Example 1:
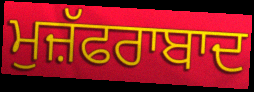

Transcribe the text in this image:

ਮੁਜ਼ੱਫਰਾਬਾਦ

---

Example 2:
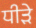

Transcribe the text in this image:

ਧੀੜੇ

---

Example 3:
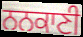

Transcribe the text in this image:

ਨਨਕਾਣੀ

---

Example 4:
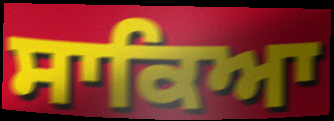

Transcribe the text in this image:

ਸਾਕਿਆ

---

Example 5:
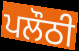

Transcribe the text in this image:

ਪਲੌਠੀ